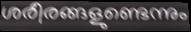
ശരീരങ്ങളുണ്ടെന്നും